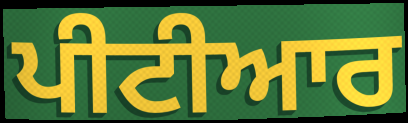
ਪੀਟੀਆਰ